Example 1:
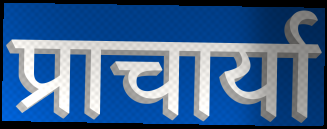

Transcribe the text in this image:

प्राचार्या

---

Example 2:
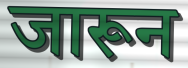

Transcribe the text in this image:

जारून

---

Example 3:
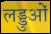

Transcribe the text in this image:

लड्डुओं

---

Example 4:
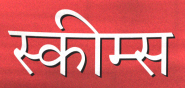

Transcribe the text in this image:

स्कीम्स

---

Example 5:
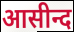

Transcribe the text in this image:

आसीन्द